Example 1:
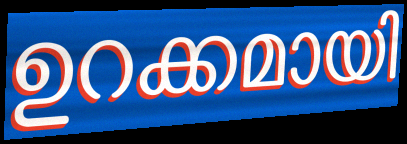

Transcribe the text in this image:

ഉറക്കമായി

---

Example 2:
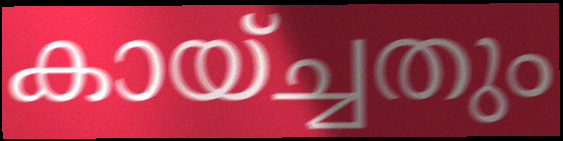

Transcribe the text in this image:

കായ്ച്ചതും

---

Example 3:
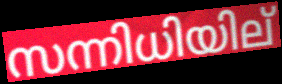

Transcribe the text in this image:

സന്നിധിയില്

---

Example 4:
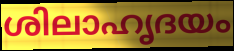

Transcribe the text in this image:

ശിലാഹൃദയം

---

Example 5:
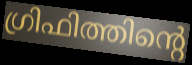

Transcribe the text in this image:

ഗ്രിഫിത്തിന്റെ